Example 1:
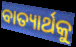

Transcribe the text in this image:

ବାତ୍ୟାର୍ଥକୁ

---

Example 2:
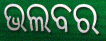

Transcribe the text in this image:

ଭଲବର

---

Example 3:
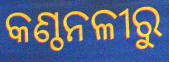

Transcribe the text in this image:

କଣ୍ଠନଳୀରୁ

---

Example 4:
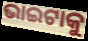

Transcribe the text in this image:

ଭାଇଟାକୁ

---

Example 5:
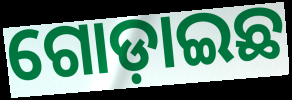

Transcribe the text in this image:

ଗୋଡ଼ାଇଛ